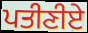
ਪਤੀਣੀਏ